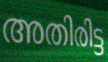
അതിരിട്ട